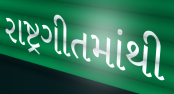
રાષ્ટ્રગીતમાંથી